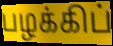
பழக்கிப்